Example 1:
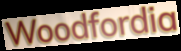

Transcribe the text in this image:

Woodfordia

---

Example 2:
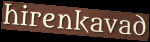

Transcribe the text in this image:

hirenkavad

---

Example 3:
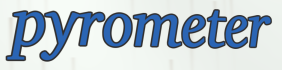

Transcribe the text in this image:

pyrometer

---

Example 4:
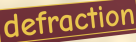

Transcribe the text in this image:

defraction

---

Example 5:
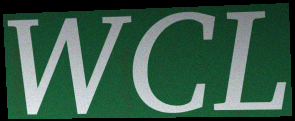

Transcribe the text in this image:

WCL